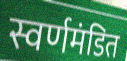
स्वर्णमंडित